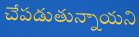
చేపడుతున్నాయని